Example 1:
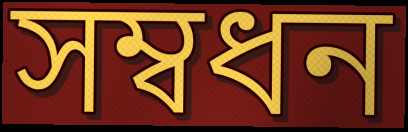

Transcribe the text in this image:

সম্বধন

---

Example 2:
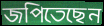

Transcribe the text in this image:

জপিতেছেন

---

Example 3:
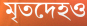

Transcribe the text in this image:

মৃতদেহও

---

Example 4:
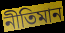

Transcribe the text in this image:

নীতিমান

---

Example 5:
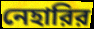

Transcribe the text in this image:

নেহারির